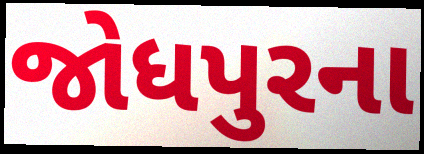
જોધપુરના